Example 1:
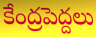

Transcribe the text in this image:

కేంద్రపెద్దలు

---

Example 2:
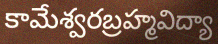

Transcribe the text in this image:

కామేశ్వరబ్రహ్మవిద్యా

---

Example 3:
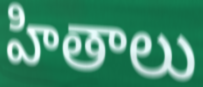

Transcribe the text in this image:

హితాలు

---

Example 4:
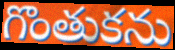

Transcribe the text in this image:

గొంతుకను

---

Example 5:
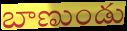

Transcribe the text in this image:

బాణుండు